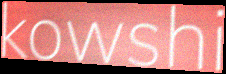
kowshi